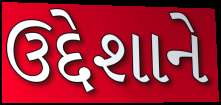
ઉદ્દેશાને